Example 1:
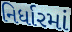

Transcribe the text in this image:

નિર્ધારમાં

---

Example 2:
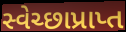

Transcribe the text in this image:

સ્વેચ્છાપ્રાપ્ત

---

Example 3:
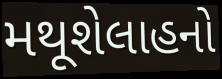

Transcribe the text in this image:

મથૂશેલાહનો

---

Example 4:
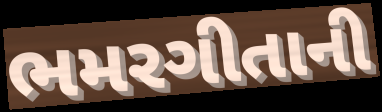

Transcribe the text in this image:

ભમરગીતાની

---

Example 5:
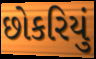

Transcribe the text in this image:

છોકરિયું